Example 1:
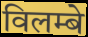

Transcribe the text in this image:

विलम्बे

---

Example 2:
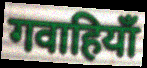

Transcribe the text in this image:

गवाहियाँ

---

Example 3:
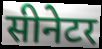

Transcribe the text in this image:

सीनेटर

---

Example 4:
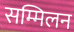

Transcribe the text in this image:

सम्मिलन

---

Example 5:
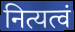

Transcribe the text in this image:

नित्यत्वं